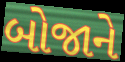
બોજાને